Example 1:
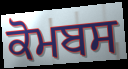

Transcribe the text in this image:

ਕੋਮਬਸ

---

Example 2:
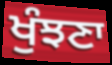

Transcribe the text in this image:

ਖੁੰਝਣਾ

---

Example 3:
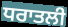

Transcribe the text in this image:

ਧਰਾਤਲੀ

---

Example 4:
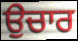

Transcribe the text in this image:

ਉਚਾਰ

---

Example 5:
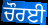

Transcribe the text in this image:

ਚੌਰਈ